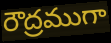
రౌద్రముగా